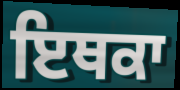
ਇਥਕਾ